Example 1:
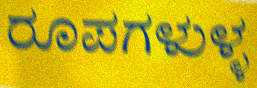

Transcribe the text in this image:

ರೂಪಗಳುಳ್ಳ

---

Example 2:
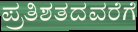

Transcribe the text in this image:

ಪ್ರತಿಶತದವರೆಗೆ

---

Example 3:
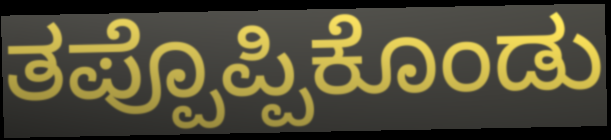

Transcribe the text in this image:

ತಪ್ಪೊಪ್ಪಿಕೊಂಡು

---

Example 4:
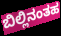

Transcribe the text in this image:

ಬಿಲ್ಲಿನಂತಹ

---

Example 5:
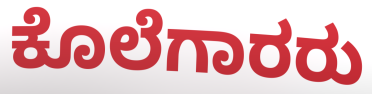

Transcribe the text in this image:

ಕೊಲೆಗಾರರು